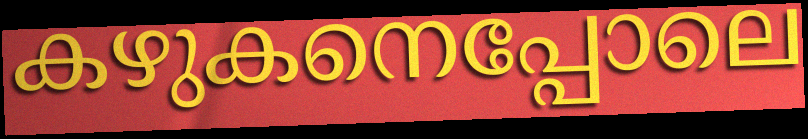
കഴുകനെപ്പോലെ